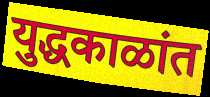
युद्धकाळांत